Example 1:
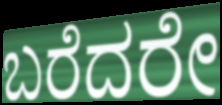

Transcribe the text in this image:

ಬರೆದರೇ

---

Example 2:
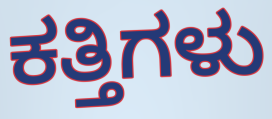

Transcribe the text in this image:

ಕತ್ತಿಗಳು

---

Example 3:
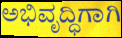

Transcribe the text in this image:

ಅಭಿವೃದ್ಧಿಗಾಗಿ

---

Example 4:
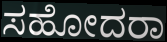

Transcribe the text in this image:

ಸಹೋದರಾ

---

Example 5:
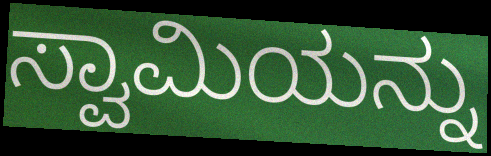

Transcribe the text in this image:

ಸ್ವಾಮಿಯನ್ನು